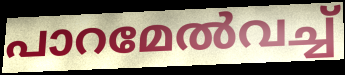
പാറമേൽവച്ച്